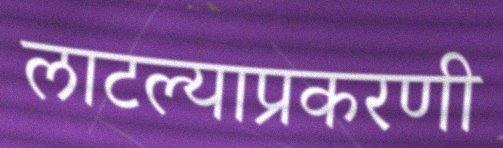
लाटल्याप्रकरणी